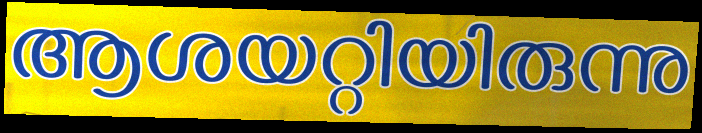
ആശയറ്റിയിരുന്നു